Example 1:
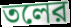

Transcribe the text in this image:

তলের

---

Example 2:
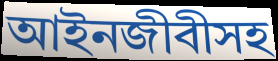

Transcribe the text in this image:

আইনজীবীসহ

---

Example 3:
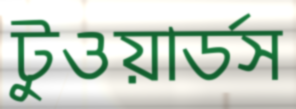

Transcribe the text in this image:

টুওয়ার্ডস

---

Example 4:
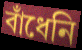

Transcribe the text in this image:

বাঁধেনি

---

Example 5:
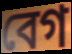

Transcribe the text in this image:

বেগ